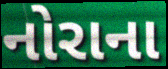
નોરાના